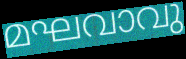
മഘവാവു